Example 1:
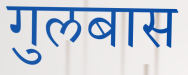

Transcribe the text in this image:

गुलबास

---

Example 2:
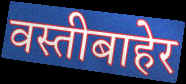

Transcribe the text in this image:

वस्तीबाहेर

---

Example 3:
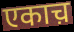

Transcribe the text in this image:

एकाच़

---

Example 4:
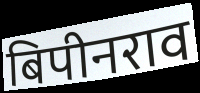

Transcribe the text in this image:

बिपीनराव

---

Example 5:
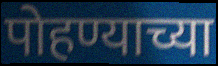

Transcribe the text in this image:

पोहण्याच्या